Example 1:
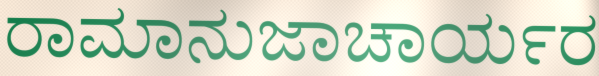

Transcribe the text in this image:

ರಾಮಾನುಜಾಚಾರ್ಯರ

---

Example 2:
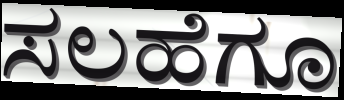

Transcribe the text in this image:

ಸಲಹೆಗೂ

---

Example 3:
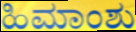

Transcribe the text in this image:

ಹಿಮಾಂಶು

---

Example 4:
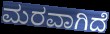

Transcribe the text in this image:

ಮರವಾಗಿದೆ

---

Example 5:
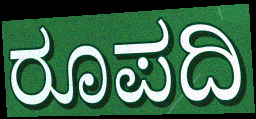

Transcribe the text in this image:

ರೂಪದಿ